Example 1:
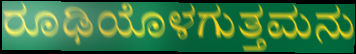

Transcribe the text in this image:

ರೂಢಿಯೊಳಗುತ್ತಮನು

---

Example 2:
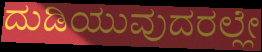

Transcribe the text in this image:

ದುಡಿಯುವುದರಲ್ಲೇ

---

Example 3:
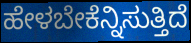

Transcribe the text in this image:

ಹೇಳಬೇಕೆನ್ನಿಸುತ್ತಿದೆ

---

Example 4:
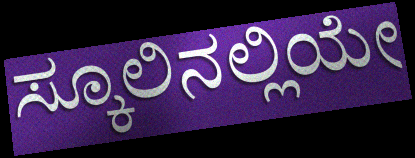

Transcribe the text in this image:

ಸ್ಕೂಲಿನಲ್ಲಿಯೇ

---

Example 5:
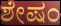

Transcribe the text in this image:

ಶೇಷಂ